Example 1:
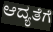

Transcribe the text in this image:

ಆದ್ಯತೆಗೆ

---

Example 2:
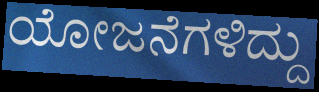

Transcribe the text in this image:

ಯೋಜನೆಗಳಿದ್ದು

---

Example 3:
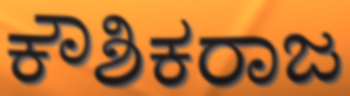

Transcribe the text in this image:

ಕೌಶಿಕರಾಜ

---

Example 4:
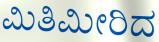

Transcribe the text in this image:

ಮಿತಿಮೀರಿದ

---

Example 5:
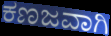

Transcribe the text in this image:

ಕಣಜವಾಗಿ